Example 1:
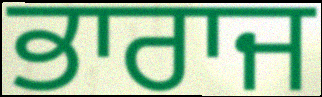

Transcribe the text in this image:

ਭਾਰਾਜ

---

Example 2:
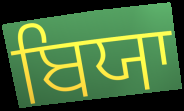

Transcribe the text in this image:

ਬਿਯਾ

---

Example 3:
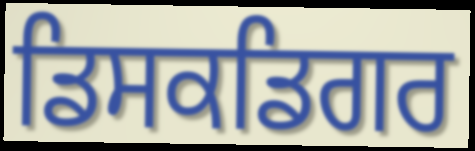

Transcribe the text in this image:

ਡਿਸਕਡਿਗਰ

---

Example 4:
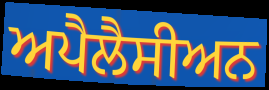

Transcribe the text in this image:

ਅਪੈਲੈਸੀਅਨ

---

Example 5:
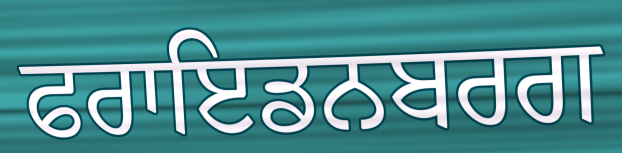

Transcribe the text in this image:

ਫਰਾਇਡਨਬਰਗ